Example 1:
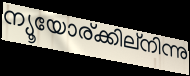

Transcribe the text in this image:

ന്യൂയോര്ക്കില്നിന്നു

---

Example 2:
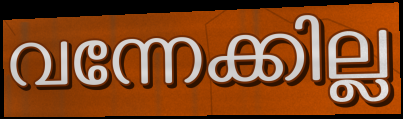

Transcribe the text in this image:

വന്നേക്കില്ല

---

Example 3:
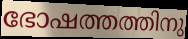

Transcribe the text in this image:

ഭോഷത്തത്തിനു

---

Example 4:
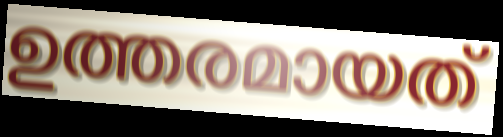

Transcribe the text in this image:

ഉത്തരമായത്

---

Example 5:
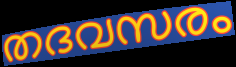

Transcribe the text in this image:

തദവസരം